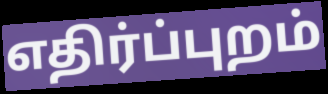
எதிர்ப்புறம்